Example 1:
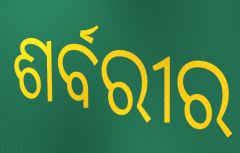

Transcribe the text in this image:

ଶର୍ବରୀର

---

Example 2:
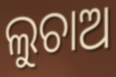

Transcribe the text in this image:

ଲୁଚାଅ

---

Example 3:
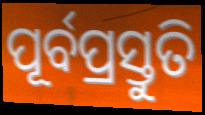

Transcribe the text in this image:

ପୂର୍ବପ୍ରସ୍ତୁତି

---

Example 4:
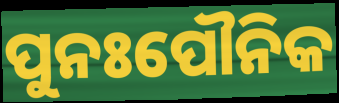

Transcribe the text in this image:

ପୁନଃପୌନିକ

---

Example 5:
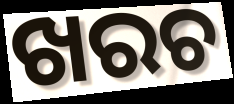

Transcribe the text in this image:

ଖରଚ